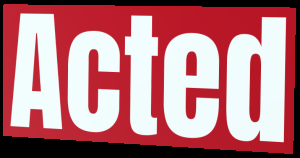
Acted